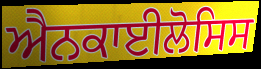
ਐਨਕਾਈਲੋਸਿਸ